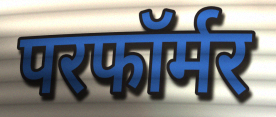
परफॉर्मर